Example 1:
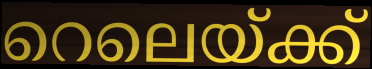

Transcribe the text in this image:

റെലെയ്ക്ക്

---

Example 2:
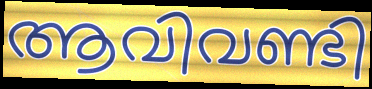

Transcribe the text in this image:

ആവിവണ്ടി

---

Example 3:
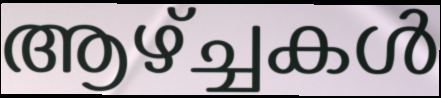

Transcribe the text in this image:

ആഴ്ച്ചകൾ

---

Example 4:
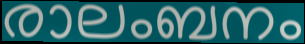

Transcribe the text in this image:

രാലംബനം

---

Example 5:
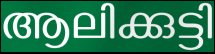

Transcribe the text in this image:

ആലിക്കുട്ടി